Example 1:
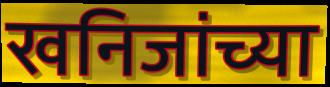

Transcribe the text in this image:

खनिजांच्या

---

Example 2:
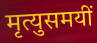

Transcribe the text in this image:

मृत्युसमयीं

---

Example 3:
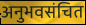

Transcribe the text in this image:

अनुभवसंचित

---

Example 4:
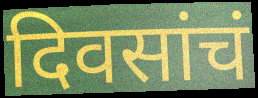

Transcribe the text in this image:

दिवसांचं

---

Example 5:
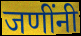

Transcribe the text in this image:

जणींनी